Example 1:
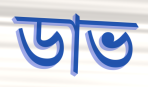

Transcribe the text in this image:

ডাভ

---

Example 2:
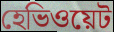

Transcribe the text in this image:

হেভিওয়েট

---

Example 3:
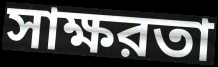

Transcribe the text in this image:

সাক্ষরতা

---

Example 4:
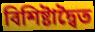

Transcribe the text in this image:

বিশিষ্টাদ্বৈত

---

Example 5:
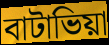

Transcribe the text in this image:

বাটাভিয়া